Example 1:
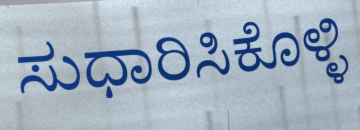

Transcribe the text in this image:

ಸುಧಾರಿಸಿಕೊಳ್ಳಿ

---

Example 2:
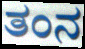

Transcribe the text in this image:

ತಂನ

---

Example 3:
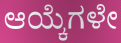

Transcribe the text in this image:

ಆಯ್ಕೆಗಳೇ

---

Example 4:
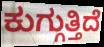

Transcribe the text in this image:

ಕುಗ್ಗುತ್ತಿದೆ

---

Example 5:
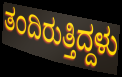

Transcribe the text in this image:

ತಂದಿರುತ್ತಿದ್ದಳು